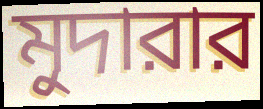
মুদারার